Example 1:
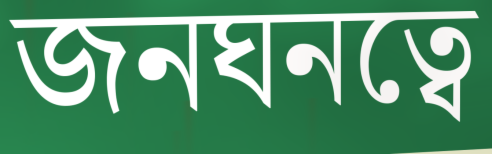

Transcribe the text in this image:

জনঘনত্বে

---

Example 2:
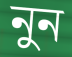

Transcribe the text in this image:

নুন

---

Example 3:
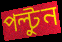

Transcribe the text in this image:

পল্টুন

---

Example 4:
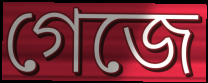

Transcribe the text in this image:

গেজে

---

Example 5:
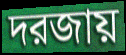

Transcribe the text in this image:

দরজায়